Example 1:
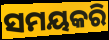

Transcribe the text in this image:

ସମୟକରି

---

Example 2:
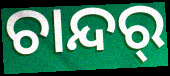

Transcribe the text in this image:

ଚାନ୍ଦର୍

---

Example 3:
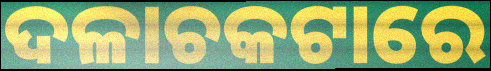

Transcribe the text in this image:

ଦଳାଚକଟାରେ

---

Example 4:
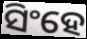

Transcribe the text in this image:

ସିଂହେ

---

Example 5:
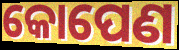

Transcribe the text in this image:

କୋପେଣ